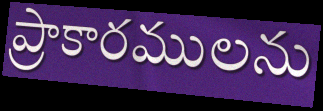
ప్రాకారములను